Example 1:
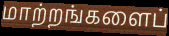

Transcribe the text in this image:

மாற்றங்களைப்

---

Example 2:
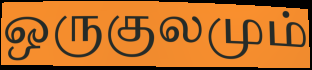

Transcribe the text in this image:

ஒருகுலமும்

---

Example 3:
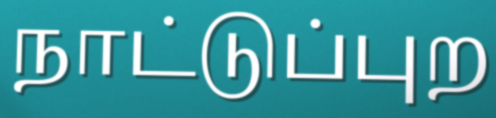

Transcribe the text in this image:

நாட்டுப்புற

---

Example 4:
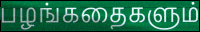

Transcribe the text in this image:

பழங்கதைகளும்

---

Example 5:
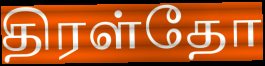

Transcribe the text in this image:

திரள்தோ